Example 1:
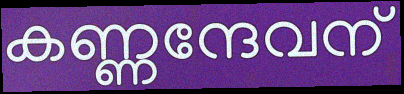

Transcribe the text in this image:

കണ്ണന്ദേവന്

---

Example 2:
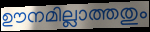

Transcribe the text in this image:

ഊനമില്ലാത്തതും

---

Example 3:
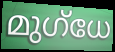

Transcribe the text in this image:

മുഗ്ധേ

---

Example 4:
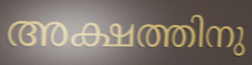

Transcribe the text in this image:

അക്ഷത്തിനു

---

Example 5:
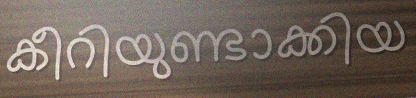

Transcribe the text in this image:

കീറിയുണ്ടാക്കിയ